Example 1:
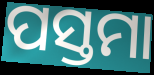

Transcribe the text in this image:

ପସ୍ତମା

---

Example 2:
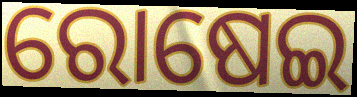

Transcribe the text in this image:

ରୋଷେଇ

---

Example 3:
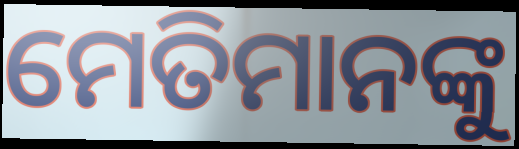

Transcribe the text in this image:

ମେତିମାନଙ୍କୁ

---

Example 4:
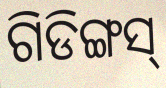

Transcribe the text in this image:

ଗିଡିଙ୍ଗସ୍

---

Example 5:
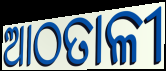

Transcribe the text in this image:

ଆଠତାଳୀ